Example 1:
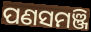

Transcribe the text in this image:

ପଣସମଞ୍ଜି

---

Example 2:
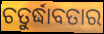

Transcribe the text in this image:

ଚତୁର୍ଦ୍ଧାବତାର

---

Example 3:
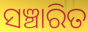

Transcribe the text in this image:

ସଞ୍ଚାରିତ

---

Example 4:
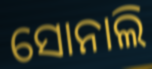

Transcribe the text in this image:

ସୋନାଲି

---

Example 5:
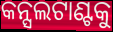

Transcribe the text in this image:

କନ୍ସଲଟାଣ୍ଟକୁ